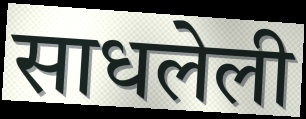
साधलेली